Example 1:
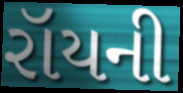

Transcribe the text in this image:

રૉયની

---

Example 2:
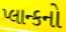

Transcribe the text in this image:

પ્લાન્કનો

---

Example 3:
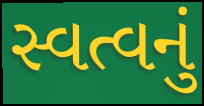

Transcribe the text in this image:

સ્વત્વનું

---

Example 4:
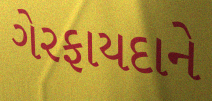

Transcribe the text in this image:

ગેરફાયદાને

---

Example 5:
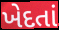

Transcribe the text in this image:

ખેદતાં